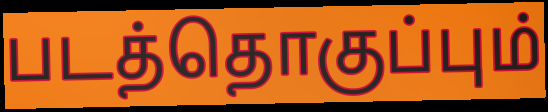
படத்தொகுப்பும்